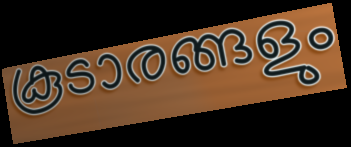
കൂടാരങ്ങളും